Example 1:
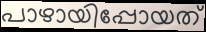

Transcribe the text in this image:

പാഴായിപ്പോയത്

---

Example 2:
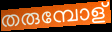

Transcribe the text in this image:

തരുമ്പോള്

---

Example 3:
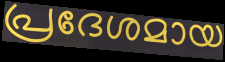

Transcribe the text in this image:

പ്രദേശമായ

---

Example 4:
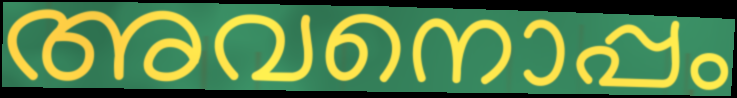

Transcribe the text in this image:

അവനൊപ്പം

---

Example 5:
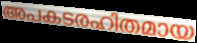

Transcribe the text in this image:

അപകടരഹിതമായ